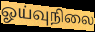
ஓய்வுநிலை